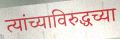
त्यांच्याविरुद्धच्या